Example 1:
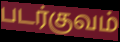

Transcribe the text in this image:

படர்குவம்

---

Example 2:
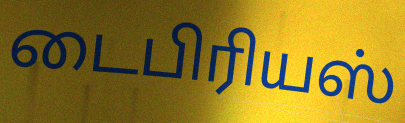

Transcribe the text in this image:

டைபிரியஸ்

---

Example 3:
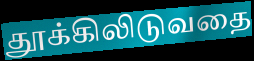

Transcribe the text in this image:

தூக்கிலிடுவதை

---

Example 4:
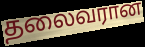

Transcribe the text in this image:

தலைவரான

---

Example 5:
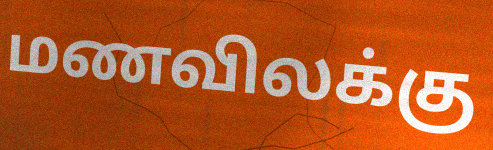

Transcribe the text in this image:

மணவிலக்கு